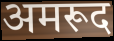
अमरूद